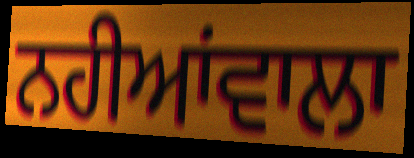
ਨਹੀਆਂਵਾਲਾ